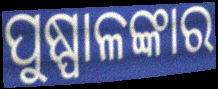
ପୁଷ୍ପାଳଙ୍କାର